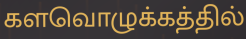
களவொழுக்கத்தில்